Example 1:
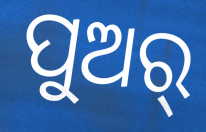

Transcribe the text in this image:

ପୁଅର୍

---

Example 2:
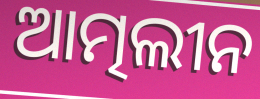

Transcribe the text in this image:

ଆତ୍ମଲୀନ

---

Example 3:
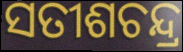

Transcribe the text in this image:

ସତୀଶଚନ୍ଦ୍ର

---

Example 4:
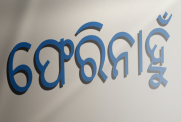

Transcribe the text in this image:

ଫେରିନାହୁଁ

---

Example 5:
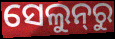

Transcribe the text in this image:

ସେଲୁନ୍‌ରୁ